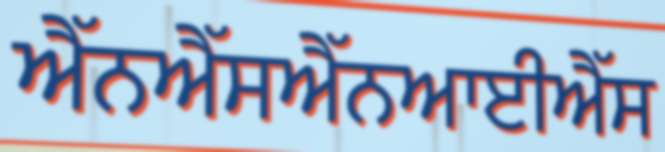
ਐੱਨਐੱਸਐੱਨਆਈਐੱਸ